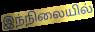
இந்நிலையில்